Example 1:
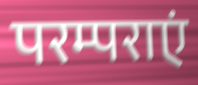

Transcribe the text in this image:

परम्पराएं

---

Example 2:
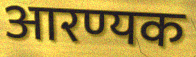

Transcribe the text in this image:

आरण्यक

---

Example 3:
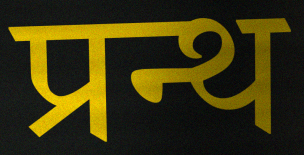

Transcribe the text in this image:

प्रन्थ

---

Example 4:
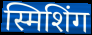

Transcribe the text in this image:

स्मिशिंग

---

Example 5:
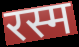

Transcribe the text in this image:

रस्म